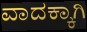
ವಾದಕ್ಕಾಗಿ